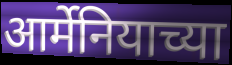
आर्मेनियाच्या